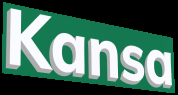
Kansa